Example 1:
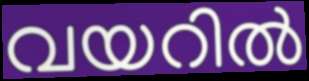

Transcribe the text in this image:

വയറിൽ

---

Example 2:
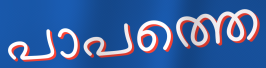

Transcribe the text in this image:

പാപത്തെ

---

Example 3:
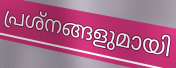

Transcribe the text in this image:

പ്രശ്നങ്ങളുമായി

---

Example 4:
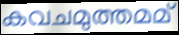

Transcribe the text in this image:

കവചമുത്തമമ്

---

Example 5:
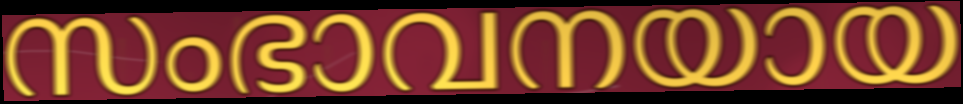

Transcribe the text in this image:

സംഭാവനയായ